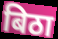
बिठा